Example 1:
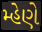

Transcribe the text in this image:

મ્હેણે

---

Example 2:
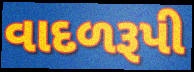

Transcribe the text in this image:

વાદળરૂપી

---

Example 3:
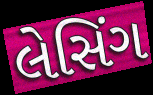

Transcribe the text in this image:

લેસિંગ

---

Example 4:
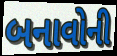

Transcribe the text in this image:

બનાવોની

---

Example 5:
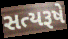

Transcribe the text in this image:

સત્યરૂષે